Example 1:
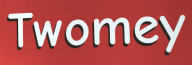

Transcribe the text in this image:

Twomey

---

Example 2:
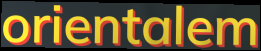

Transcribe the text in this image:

orientalem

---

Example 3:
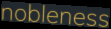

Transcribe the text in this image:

nobleness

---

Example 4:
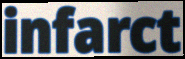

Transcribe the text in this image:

infarct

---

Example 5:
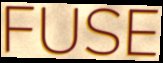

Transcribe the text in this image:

FUSE